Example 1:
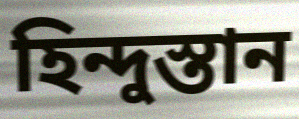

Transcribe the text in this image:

হিন্দুস্তান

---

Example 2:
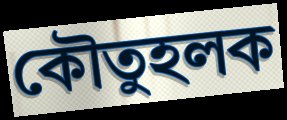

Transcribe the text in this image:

কৌতুহলক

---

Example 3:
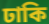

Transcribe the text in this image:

ঢাকি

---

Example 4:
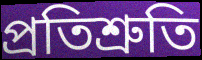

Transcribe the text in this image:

প্ৰতিশ্ৰুতি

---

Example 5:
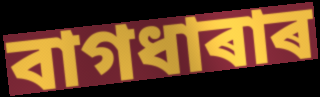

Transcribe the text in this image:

বাগধাৰাৰ